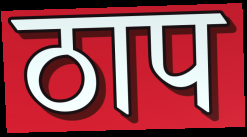
ठाप